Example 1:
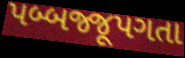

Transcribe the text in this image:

પબ્બજ્જૂપગતા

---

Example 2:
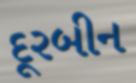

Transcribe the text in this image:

દૂરબીન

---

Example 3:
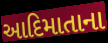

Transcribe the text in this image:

આદિમાતાના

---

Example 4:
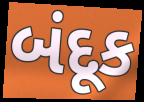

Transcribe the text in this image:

બંદૂક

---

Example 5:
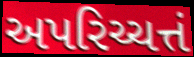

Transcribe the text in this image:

અપરિચ્ચત્તં